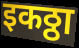
इकठ्ठा